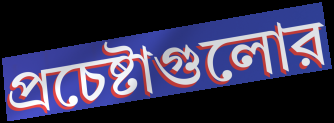
প্রচেষ্টাগুলোর